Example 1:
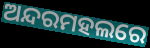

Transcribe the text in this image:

ଅନ୍ଦରମହଲରେ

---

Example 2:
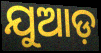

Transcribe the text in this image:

ଯୁଆଡ଼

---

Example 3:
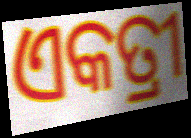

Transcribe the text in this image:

ଏକତ୍ରୀ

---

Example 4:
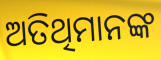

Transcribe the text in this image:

ଅତିଥିମାନଙ୍କ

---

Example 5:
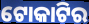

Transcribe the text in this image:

ଟୋକାଟିର